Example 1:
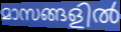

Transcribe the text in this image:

മാസങ്ങളിൽ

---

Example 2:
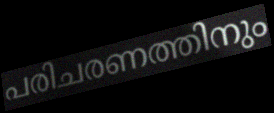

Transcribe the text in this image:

പരിചരണത്തിനും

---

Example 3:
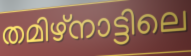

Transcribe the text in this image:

തമിഴ്നാട്ടിലെ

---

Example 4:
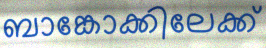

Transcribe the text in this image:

ബാങ്കോക്കിലേക്ക്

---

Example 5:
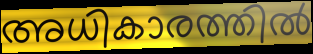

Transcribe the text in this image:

അധികാരത്തിൽ